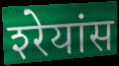
श्रेयांस